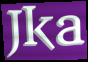
Jka